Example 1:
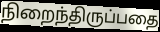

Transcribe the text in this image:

நிறைந்திருப்பதை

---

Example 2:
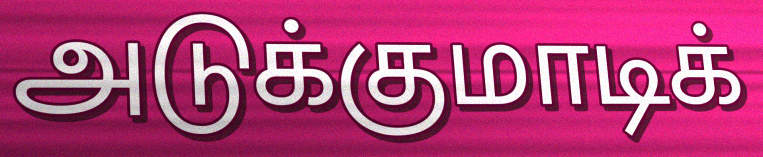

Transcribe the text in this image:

அடுக்குமாடிக்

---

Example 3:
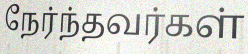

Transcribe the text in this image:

நேர்ந்தவர்கள்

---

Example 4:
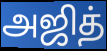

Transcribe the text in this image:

அஜித்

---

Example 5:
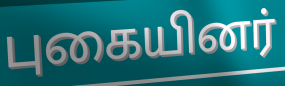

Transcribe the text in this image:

புகையினர்